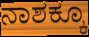
ನಾಶಕ್ಕೂ